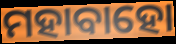
ମହାବାହୋ